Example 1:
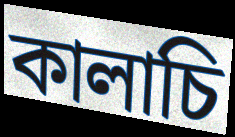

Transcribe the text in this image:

কালাচি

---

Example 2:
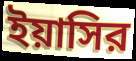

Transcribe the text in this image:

ইয়াসির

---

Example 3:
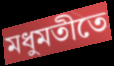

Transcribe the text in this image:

মধুমতীতে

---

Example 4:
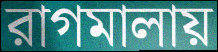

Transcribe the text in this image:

রাগমালায়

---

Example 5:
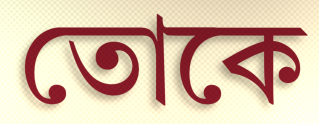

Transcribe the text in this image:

তোকে